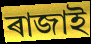
ৰাজাই